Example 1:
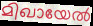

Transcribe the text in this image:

മിഖായേൽ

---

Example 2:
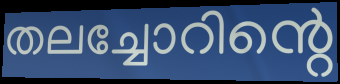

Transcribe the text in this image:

തലച്ചോറിന്റെ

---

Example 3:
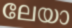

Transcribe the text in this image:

ലേയാ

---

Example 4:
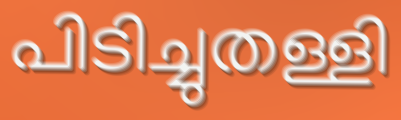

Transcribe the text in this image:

പിടിച്ചുതള്ളി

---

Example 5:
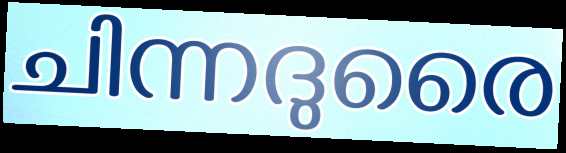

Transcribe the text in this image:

ചിന്നദുരൈ